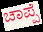
ಚಾಪ್ಪೆ